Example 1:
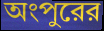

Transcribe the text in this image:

অংপুরের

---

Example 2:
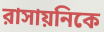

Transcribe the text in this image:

রাসায়নিকে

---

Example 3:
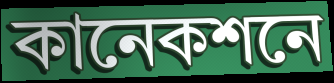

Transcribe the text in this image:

কানেকশনে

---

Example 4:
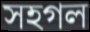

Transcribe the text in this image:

সহগল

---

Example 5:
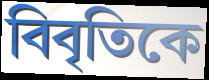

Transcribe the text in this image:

বিবৃতিকে